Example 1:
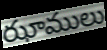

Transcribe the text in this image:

ఝాములు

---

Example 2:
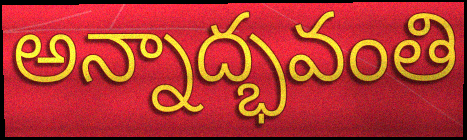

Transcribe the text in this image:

అన్నాద్భవంతి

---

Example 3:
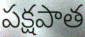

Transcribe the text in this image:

పక్షపాత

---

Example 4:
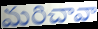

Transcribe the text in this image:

మరిచావా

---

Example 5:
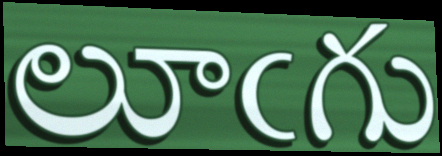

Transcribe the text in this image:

లూఁగు